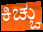
ಕಿಚ್ಚು